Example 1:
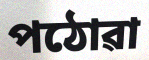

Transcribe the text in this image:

পঠোৱা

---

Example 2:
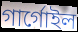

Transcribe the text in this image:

গাৰ্গোইল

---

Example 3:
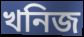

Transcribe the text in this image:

খনিজ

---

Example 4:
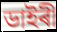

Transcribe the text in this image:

ডাইৰী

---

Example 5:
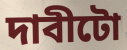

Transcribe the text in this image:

দাবীটো